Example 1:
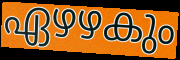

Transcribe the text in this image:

ഏഴഴകും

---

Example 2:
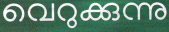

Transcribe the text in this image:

വെറുക്കുന്നു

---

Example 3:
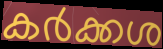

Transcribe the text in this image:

കർക്കശ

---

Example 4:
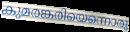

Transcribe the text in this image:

കുമരങ്കരിയെന്നൊരു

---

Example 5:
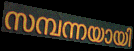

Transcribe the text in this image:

സമ്പന്നയായി